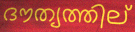
ദൗത്യത്തില്